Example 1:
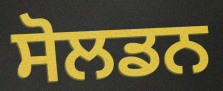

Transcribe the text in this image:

ਸੋਲਡਨ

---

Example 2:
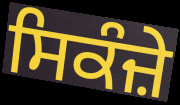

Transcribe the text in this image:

ਸਿਕੰਜ਼ੇ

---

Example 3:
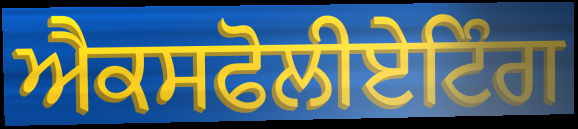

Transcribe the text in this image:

ਐਕਸਫੋਲੀਏਟਿੰਗ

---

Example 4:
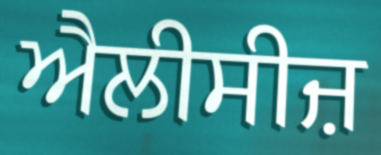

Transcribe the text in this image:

ਐਲੀਸੀਜ਼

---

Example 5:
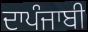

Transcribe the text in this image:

ਦਾਪੰਜਾਬੀ